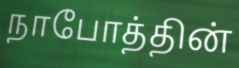
நாபோத்தின்